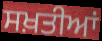
ਸਖ਼ਤੀਆਂ